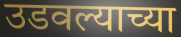
उडवल्याच्या